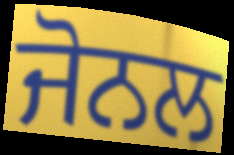
ਜੋਨਲ